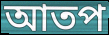
আতপ